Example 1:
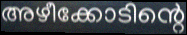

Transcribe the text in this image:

അഴീക്കോടിന്റെ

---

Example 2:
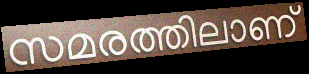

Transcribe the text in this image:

സമരത്തിലാണ്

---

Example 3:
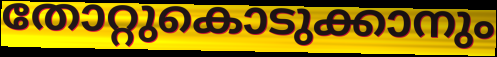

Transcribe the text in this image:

തോറ്റുകൊടുക്കാനും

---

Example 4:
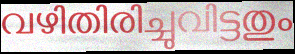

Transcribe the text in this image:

വഴിതിരിച്ചുവിട്ടതും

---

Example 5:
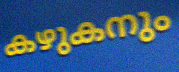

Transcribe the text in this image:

കഴുകനും